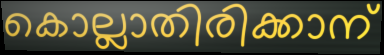
കൊല്ലാതിരിക്കാന്